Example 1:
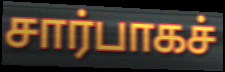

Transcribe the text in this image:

சார்பாகச்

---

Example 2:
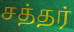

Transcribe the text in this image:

சத்தர்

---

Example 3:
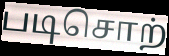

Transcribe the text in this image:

படிசொற்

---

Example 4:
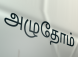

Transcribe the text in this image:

அழுதோம்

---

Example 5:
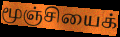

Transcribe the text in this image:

மூஞ்சியைக்